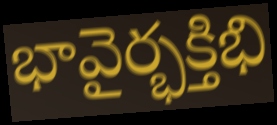
భావైర్భక్తిభి